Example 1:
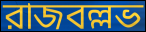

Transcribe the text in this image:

রাজবল্লভ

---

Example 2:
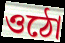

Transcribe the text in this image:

ওঠো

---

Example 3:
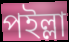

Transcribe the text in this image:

পইল্লা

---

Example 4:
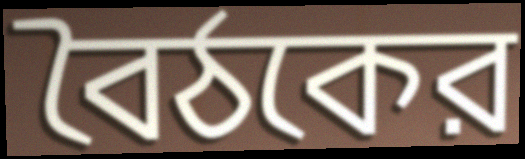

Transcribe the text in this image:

বৈঠকের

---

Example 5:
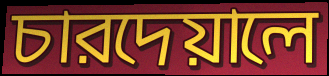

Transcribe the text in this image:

চারদেয়ালে